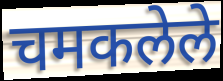
चमकलेले